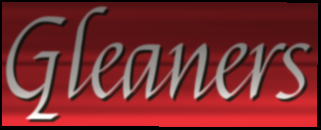
Gleaners